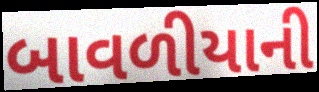
બાવળીયાની